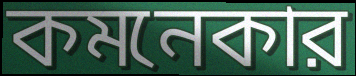
কমনেকার